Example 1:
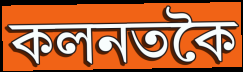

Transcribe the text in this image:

কলনতকৈ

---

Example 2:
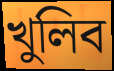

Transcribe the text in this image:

খুলিব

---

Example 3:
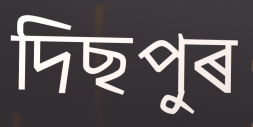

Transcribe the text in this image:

দিছপুৰ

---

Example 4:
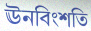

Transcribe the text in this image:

ঊনবিংশতি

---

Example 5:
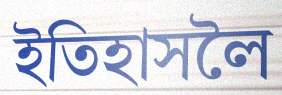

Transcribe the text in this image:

ইতিহাসলৈ